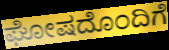
ಘೋಷದೊಂದಿಗೆ